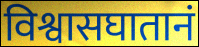
विश्वासघातानं